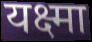
यक्ष्मा